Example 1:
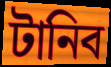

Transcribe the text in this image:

টানিব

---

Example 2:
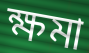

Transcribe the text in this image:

ক্ষমা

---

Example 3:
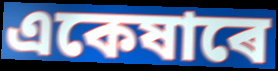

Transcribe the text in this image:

একেষাৰে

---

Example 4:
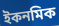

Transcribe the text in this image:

ইকনমিক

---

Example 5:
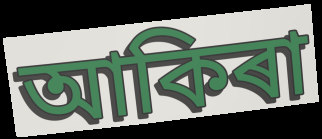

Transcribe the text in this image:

আকিৰা